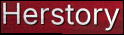
Herstory